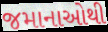
જમાનાઓથી